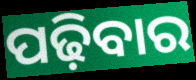
ପଢ଼ିବାର